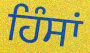
ਹਿੰਸਾਂ